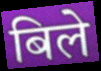
बिले